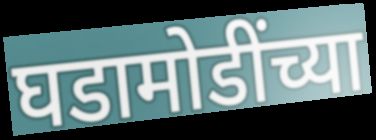
घडामोडींच्या